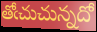
తోఁచుచున్నదో